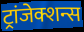
ट्रांजेक्शन्स